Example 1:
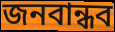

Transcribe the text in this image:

জনবান্ধব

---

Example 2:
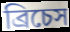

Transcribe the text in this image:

ব্রিচেস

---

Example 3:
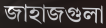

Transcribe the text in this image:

জাহাজগুলা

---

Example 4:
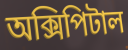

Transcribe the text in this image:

অক্সিপিটাল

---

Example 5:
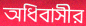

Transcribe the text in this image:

অধিবাসীর